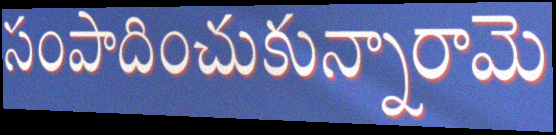
సంపాదించుకున్నారామె